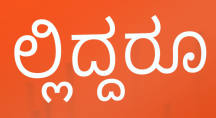
ಲ್ಲಿದ್ದರೂ